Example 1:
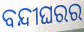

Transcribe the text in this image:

ବନ୍ଦୀଘରର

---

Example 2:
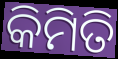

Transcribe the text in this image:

କିମିତି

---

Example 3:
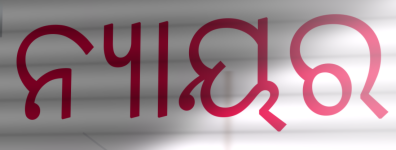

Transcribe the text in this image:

ନ୍ୟାୟର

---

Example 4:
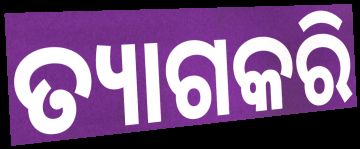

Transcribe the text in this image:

ତ୍ୟାଗକରି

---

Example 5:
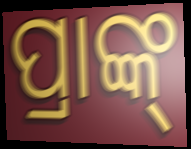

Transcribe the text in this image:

ପ୍ରାଙ୍କ୍